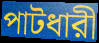
পাটধারী